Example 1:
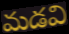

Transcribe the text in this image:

మడవి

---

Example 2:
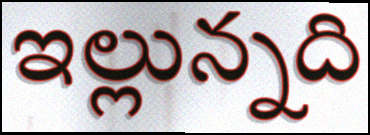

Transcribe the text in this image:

ఇల్లున్నది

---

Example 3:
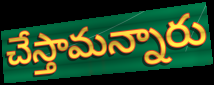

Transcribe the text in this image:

చేస్తామన్నారు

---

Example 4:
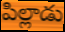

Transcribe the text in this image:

పిల్లాడు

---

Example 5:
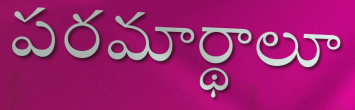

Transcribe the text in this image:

పరమార్థాలూ